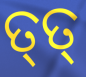
ତ୍‌ତ୍